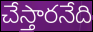
చేస్తారనేది